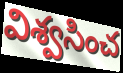
విశ్వసించ